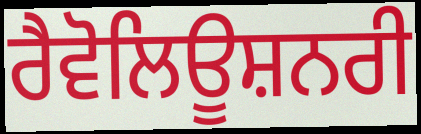
ਰੈਵੋਲਿਊਸ਼ਨਰੀ